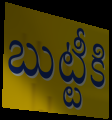
బుట్టీకి